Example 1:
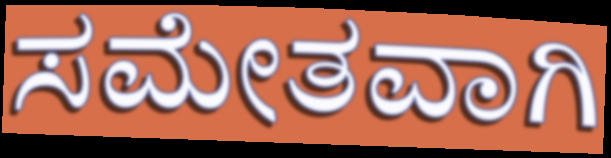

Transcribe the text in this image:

ಸಮೇತವಾಗಿ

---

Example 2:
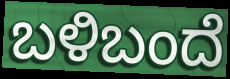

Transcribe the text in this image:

ಬಳಿಬಂದೆ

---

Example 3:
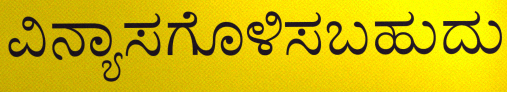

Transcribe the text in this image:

ವಿನ್ಯಾಸಗೊಳಿಸಬಹುದು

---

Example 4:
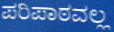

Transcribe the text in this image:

ಪರಿಪಾಠವಲ್ಲ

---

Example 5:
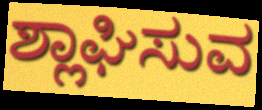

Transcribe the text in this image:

ಶ್ಲಾಘಿಸುವ